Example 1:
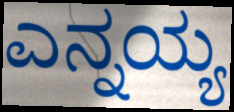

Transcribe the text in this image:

ಎನ್ನಯ್ಯ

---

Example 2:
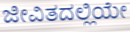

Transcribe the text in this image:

ಜೀವಿತದಲ್ಲಿಯೇ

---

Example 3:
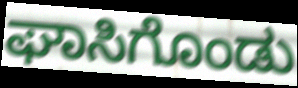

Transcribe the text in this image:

ಘಾಸಿಗೊಂಡು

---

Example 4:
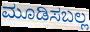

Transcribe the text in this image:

ಮೂಡಿಸಬಲ್ಲ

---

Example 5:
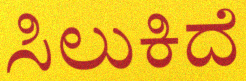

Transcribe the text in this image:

ಸಿಲುಕಿದೆ